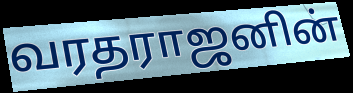
வரதராஜனின்